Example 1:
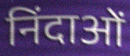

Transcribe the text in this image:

निंदाओं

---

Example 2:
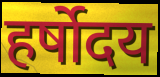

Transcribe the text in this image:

हर्षोदय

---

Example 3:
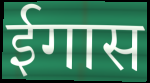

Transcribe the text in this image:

ईगास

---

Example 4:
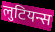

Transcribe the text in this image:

लुटियन्स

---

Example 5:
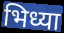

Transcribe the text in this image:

भिध्या